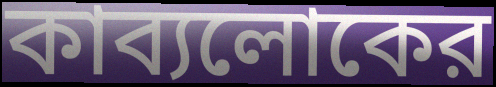
কাব্যলোকের